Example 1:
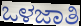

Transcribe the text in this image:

ಒಳಜಾತಿ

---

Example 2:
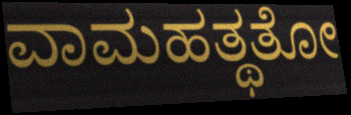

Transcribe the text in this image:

ವಾಮಹತ್ಥತೋ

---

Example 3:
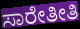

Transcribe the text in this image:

ಸಾರೇತೀತಿ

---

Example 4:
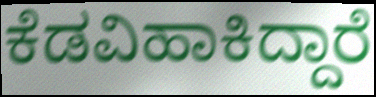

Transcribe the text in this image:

ಕೆಡವಿಹಾಕಿದ್ದಾರೆ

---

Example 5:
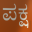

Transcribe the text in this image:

ಪಕ್ಷ